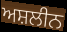
ਅਸ਼ਲੀਨ